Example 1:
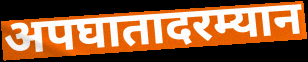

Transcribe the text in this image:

अपघातादरम्यान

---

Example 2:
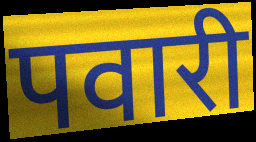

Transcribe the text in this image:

पवारी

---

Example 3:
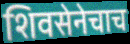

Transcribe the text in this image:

शिवसेनेचाच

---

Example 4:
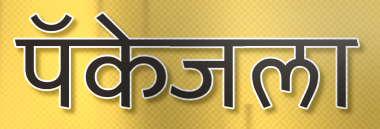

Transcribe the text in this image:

पॅकेजला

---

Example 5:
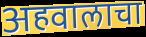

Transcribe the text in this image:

अहवालाचा